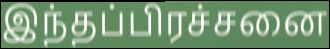
இந்தப்பிரச்சனை